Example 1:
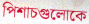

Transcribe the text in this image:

পিশাচগুলোকে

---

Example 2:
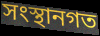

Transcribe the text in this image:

সংস্থানগত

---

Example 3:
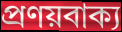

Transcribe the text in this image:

প্রণয়বাক্য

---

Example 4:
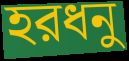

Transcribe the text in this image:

হরধনু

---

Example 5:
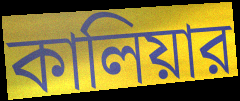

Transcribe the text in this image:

কালিয়ার